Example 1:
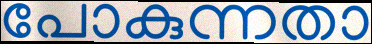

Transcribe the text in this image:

പോകുന്നതാ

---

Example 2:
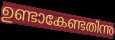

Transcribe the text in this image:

ഉണ്ടാകേണ്ടതിന്നു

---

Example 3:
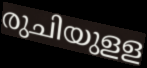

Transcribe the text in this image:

രുചിയുളള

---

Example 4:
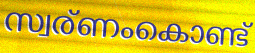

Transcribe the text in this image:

സ്വര്ണംകൊണ്ട്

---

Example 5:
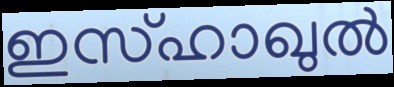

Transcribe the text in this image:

ഇസ്ഹാഖുൽ